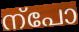
ന്പോ